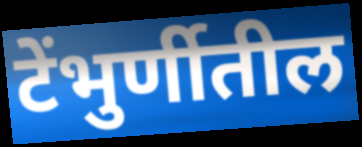
टेंभुर्णीतील